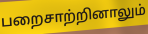
பறைசாற்றினாலும்